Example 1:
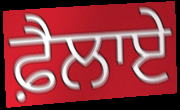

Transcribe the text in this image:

ਫ਼ੈਲਾਏ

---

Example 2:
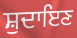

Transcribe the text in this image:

ਸ਼ੁਦਾਇਣ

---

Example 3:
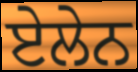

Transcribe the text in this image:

ਏਲੇਨ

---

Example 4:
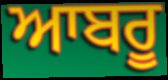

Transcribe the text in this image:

ਆਬਰੂ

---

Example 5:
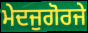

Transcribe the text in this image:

ਮੇਦਜੁਗੋਰਜੇ